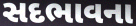
સદભાવના